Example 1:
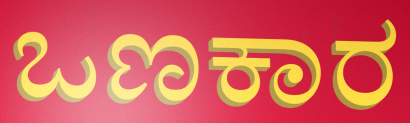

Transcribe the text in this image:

ಒಣಕಾರ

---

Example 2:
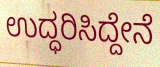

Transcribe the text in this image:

ಉದ್ಧರಿಸಿದ್ದೇನೆ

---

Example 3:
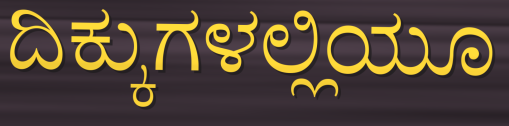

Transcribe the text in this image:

ದಿಕ್ಕುಗಳಲ್ಲಿಯೂ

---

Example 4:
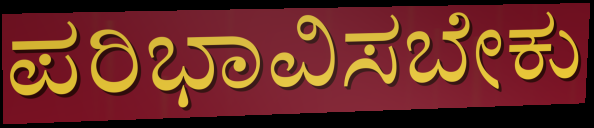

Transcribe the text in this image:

ಪರಿಭಾವಿಸಬೇಕು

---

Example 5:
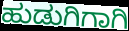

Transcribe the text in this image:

ಹುಡುಗಿಗಾಗಿ